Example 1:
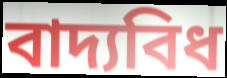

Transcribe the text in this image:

বাদ্যবিধ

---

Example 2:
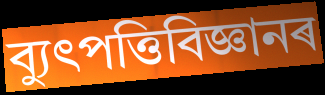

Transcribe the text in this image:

ব্যুৎপত্তিবিজ্ঞানৰ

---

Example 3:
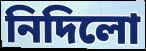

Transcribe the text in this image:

নিদিলো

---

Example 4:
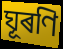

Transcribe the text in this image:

ঘূৰণি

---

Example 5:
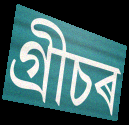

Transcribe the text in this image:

গ্ৰীচৰ